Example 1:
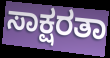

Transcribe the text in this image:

ಸಾಕ್ಷರತಾ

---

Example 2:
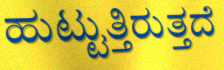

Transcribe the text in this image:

ಹುಟ್ಟುತ್ತಿರುತ್ತದೆ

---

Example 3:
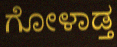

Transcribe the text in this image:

ಗೋಳಾಡ್ತ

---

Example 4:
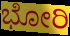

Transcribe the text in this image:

ಭೋರಿ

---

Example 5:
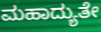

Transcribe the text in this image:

ಮಹಾದ್ಯುತೇ